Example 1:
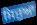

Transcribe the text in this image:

ਸਿਜੁਆ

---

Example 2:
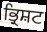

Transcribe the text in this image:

ਭ੍ਰਿਸ਼ਟ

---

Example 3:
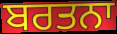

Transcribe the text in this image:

ਬਰਤਨਾ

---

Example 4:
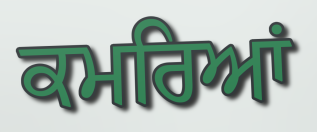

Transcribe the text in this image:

ਕਮਰਿਆਂ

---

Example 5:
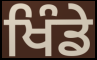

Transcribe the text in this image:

ਖਿੰਡੇ